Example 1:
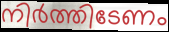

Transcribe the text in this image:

നിർത്തിടേണം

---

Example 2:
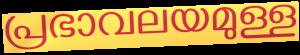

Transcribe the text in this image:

പ്രഭാവലയമുള്ള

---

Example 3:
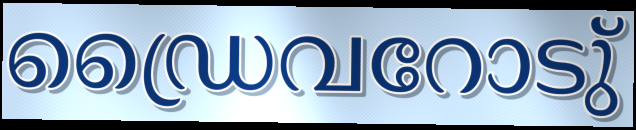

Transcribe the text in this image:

ഡ്രൈവറോടു്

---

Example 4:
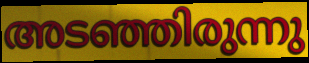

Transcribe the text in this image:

അടഞ്ഞിരുന്നു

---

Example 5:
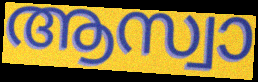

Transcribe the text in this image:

ആസ്വാ